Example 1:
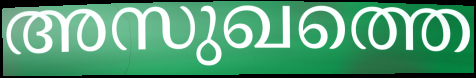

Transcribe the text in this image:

അസുഖത്തെ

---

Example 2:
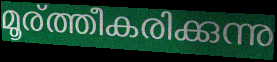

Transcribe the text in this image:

മൂര്ത്തീകരിക്കുന്നു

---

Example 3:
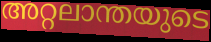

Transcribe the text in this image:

അറ്റലാന്തയുടെ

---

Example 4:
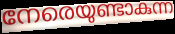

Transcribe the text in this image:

നേരെയുണ്ടാകുന്ന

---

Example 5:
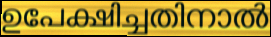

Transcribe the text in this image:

ഉപേക്ഷിച്ചതിനാൽ